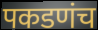
पकडणंच